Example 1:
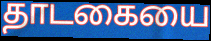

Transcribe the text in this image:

தாடகையை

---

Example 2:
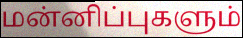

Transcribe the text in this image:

மன்னிப்புகளும்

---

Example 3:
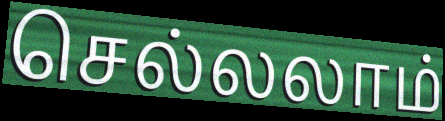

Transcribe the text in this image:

செல்லலாம்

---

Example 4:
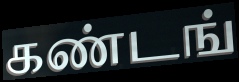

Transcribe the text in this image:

கண்டங்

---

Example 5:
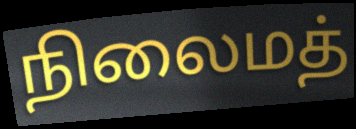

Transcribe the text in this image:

நிலைமத்